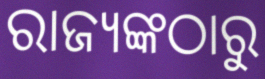
ରାଜ୍ୟଙ୍କଠାରୁ